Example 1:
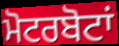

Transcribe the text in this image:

ਮੋਟਰਬੋਟਾਂ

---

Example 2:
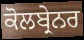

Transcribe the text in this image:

ਕੋਲਬ੍ਰੇਨਰ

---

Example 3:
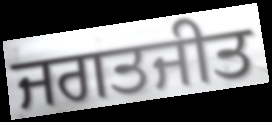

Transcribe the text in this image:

ਜਗਤਜੀਤ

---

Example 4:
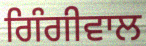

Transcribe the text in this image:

ਗਿੰਗੀਵਾਲ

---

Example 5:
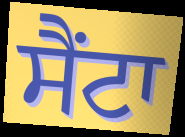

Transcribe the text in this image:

ਸੈਂਟਾ